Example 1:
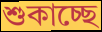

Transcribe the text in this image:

শুকাচ্ছে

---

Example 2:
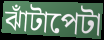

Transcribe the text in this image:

ঝাঁটাপেটা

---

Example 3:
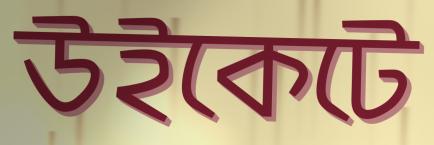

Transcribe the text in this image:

উইকেটে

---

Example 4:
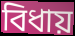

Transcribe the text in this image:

বিধায়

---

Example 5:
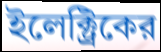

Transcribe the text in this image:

ইলেক্ট্রিকের